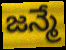
జన్మే